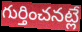
గుర్తించనట్లే